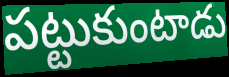
పట్టుకుంటాడు